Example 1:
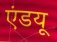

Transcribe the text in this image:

एंडयू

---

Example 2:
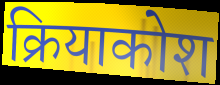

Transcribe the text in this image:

क्रियाकोश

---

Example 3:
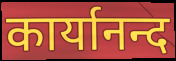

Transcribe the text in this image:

कार्यानन्द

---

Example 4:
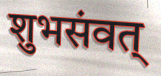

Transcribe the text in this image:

शुभसंवत्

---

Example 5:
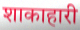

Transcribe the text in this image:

शाकाहारी